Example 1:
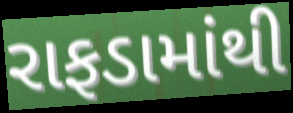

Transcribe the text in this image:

રાફડામાંથી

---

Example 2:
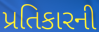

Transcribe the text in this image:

પ્રતિકારની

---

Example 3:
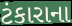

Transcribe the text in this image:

ટંકારાના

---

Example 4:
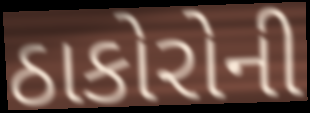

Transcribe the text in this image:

ઠાકોરોની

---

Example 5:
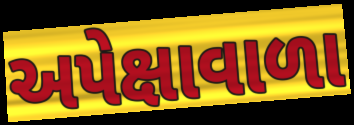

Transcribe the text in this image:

અપેક્ષાવાળા